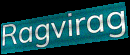
Ragvirag